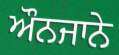
ਔਨਜਾਨੇ